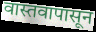
वास्तवापासून